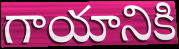
గాయానికి